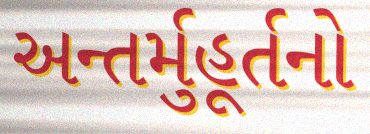
અન્તર્મુહૂર્તનો